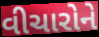
વીચારોને